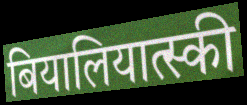
बियालियात्स्की